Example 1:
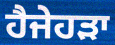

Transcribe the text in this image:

ਹੈਜੇਹੜਾ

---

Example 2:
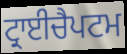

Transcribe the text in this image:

ਟ੍ਰਾਈਚੈਪਟਮ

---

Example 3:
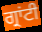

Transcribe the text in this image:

ਗ੍ਰਾਂਟੀ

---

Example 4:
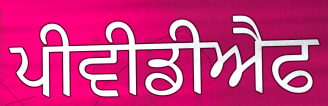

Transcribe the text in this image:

ਪੀਵੀਡੀਐਫ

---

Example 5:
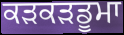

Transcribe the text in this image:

ਕੜਕੜਡੂਮਾ